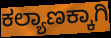
ಕಲ್ಯಾಣಕ್ಕಾಗಿ